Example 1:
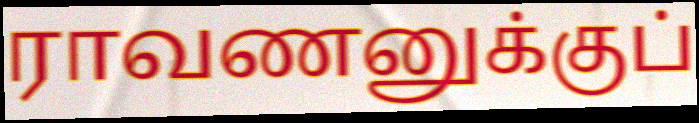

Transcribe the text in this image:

ராவணனுக்குப்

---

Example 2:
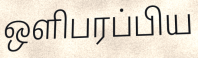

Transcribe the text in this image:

ஒளிபரப்பிய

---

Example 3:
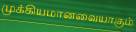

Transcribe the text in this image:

முக்கியமானவையாகும்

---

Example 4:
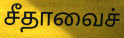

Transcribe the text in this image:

சீதாவைச்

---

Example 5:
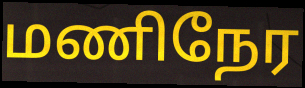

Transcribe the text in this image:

மணிநேர